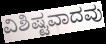
ವಿಶಿಷ್ಟವಾದವು